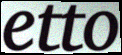
etto